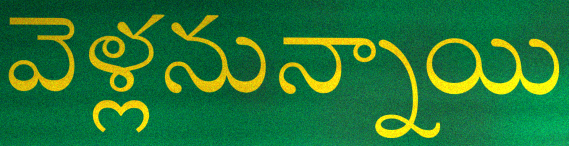
వెళ్లనున్నాయి